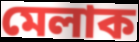
মেলাক